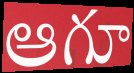
ఆగూ